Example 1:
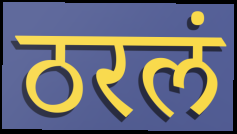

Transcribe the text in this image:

ठरलं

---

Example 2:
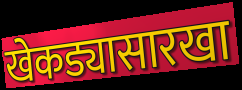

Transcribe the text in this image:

खेकड्यासारखा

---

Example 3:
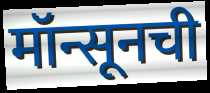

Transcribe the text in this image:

मॉन्सूनची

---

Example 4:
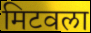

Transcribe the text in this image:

मिटवला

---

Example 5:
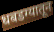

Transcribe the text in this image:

धबडग्यातून